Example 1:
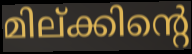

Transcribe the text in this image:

മില്ക്കിന്റെ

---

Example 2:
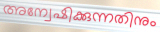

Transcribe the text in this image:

അന്വേഷിക്കുന്നതിനും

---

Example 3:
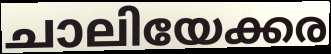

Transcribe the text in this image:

ചാലിയേക്കര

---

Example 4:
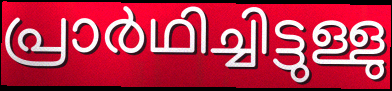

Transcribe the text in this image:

പ്രാർഥിച്ചിട്ടുള്ളു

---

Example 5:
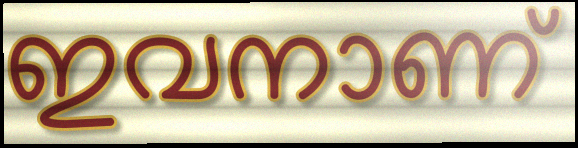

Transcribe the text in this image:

ഇവനാണ്